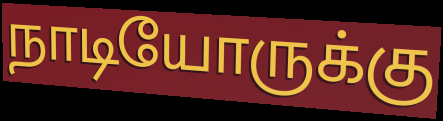
நாடியோருக்கு